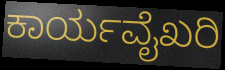
ಕಾರ್ಯವೈಖರಿ